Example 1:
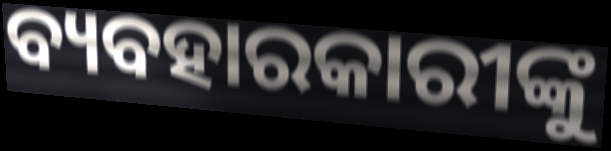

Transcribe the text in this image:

ବ୍ୟବହାରକାରୀଙ୍କୁ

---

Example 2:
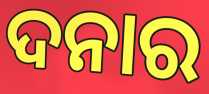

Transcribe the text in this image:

ଦନାର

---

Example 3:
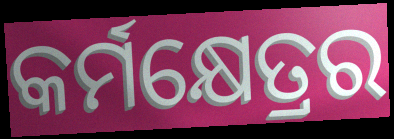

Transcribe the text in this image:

କର୍ମକ୍ଷେତ୍ରର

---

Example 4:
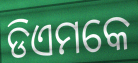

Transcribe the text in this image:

ଡିଏମକେ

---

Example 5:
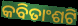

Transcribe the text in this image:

କବିତାଂଶଟି